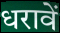
धरावें